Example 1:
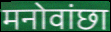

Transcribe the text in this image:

मनोवांछा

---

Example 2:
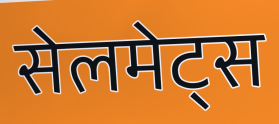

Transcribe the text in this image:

सेलमेट्स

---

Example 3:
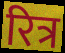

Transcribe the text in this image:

रित्र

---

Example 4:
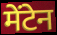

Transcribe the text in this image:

मेंटेन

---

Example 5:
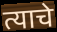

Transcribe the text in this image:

त्याचे